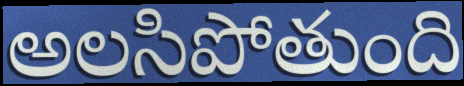
అలసిపోతుంది